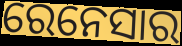
ରେନେସାର